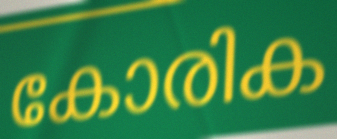
കോരിക